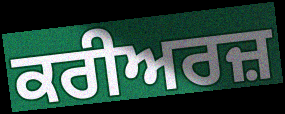
ਕਰੀਅਰਜ਼